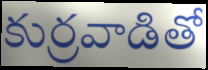
కుర్రవాడితో